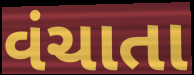
વંચાતા